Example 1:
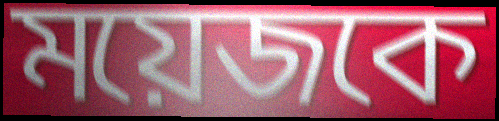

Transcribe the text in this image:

ময়েজকে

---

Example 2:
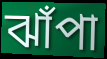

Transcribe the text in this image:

ঝাঁপা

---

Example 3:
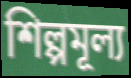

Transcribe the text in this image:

শিল্পমূল্য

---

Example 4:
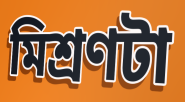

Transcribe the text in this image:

মিশ্রণটা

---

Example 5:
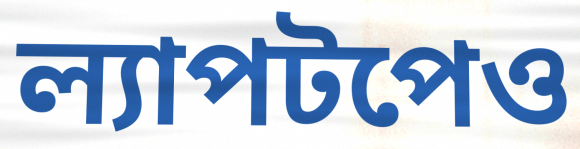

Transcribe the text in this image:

ল্যাপটপেও